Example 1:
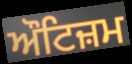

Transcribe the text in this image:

ਔਟਿਜ਼ਮ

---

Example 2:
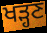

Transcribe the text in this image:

ਖੜ੍ਹਣ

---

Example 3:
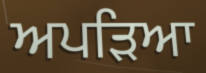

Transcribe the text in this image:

ਅਪੜਿਆ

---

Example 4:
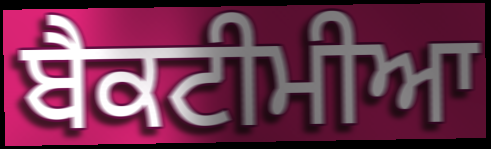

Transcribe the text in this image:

ਬੈਕਟੀਮੀਆ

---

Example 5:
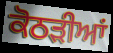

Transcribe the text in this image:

ਕੋਠੜੀਆਂ